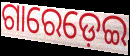
ଗାରେଡ଼େଇ